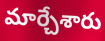
మార్చేశారు